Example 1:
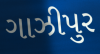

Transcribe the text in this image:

ગાઝીપુર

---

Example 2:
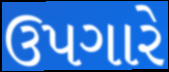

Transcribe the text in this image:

ઉપગારે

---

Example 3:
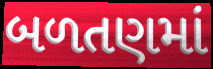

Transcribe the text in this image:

બળતણમાં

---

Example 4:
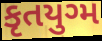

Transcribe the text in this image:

કૃતયુગ્મ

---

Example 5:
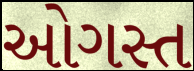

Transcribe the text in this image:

ઓગસ્ત